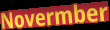
Novermber